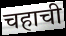
चहाची